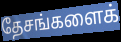
தேசங்களைக்